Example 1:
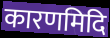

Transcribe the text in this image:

कारणमिदि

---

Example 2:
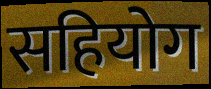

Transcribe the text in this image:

सहियोग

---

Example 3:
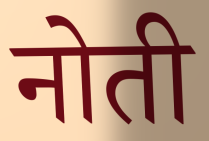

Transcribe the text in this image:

नोती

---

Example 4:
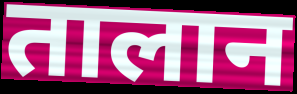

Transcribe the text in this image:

तालान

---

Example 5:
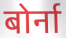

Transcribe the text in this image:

बोर्ना